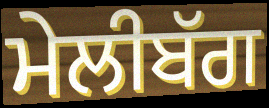
ਮੇਲੀਬੱਗ